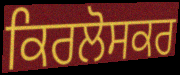
ਕਿਰਲੋਸਕਰ